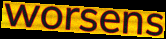
worsens